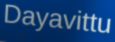
Dayavittu